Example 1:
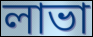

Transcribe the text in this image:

লাভা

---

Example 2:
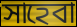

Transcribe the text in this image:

সাহেবা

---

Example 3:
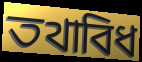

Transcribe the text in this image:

তথাবিধ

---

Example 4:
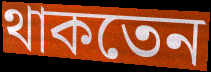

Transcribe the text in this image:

থাকতেন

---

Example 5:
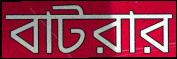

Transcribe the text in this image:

বাটরার